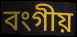
বংগীয়